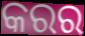
କରର